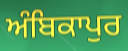
ਅੰਬਿਕਾਪੁਰ